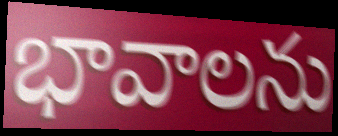
భావాలను